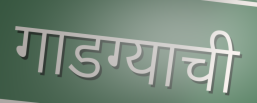
गाडग्याची